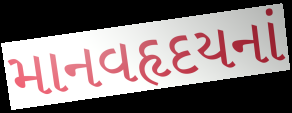
માનવહૃદયનાં